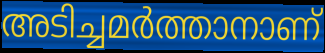
അടിച്ചമർത്താനാണ്